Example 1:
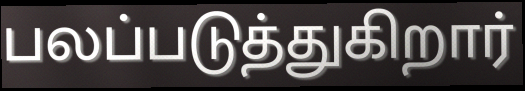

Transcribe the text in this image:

பலப்படுத்துகிறார்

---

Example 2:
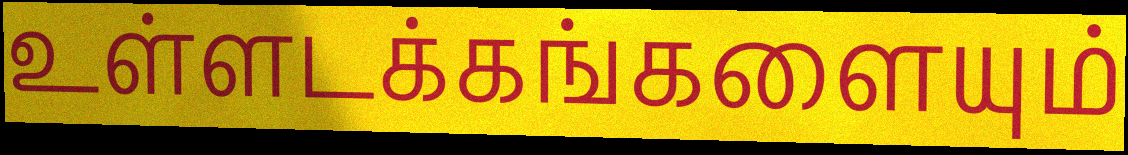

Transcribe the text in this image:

உள்ளடக்கங்களையும்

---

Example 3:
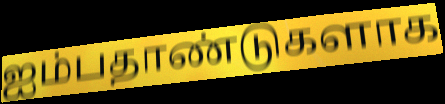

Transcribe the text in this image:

ஐம்பதாண்டுகளாக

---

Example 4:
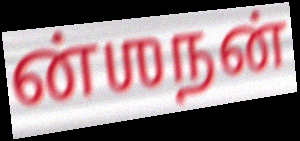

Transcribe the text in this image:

ன்ஶநன்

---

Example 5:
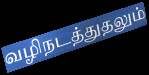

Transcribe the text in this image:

வழிநடத்துதலும்